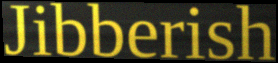
Jibberish